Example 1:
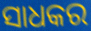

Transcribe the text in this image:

ସାଧକର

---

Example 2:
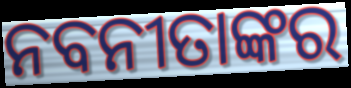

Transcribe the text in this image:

ନବନୀତାଙ୍କର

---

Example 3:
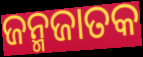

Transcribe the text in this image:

ଜନ୍ମଜାତକ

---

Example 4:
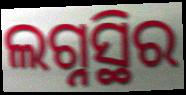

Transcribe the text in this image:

ଲଗ୍ନସ୍ଥିର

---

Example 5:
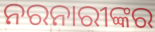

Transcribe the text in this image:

ନରନାରୀଙ୍କର